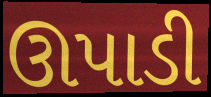
ઊપાડી